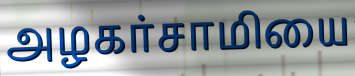
அழகர்சாமியை